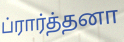
ப்ரார்த்தனா